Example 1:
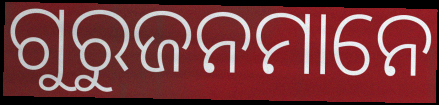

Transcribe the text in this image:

ଗୁରୁଜନମାନେ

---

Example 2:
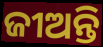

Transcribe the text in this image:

ଜୀଅନ୍ତି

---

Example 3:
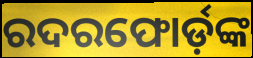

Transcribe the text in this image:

ରଦରଫୋର୍ଡ଼ଙ୍କ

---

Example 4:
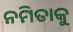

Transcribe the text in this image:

ନମିତାକୁ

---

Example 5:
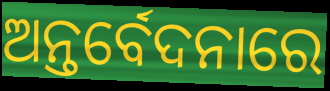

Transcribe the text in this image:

ଅନ୍ତର୍ବେଦନାରେ